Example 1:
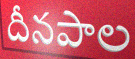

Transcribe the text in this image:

దీనపాల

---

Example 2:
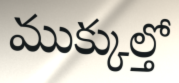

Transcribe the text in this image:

ముక్కుల్తో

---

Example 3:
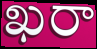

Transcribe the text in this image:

ఖరా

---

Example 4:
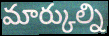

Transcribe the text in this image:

మార్కుల్ని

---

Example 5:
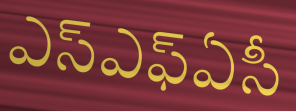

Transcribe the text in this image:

ఎస్ఎఫ్ఏసీ